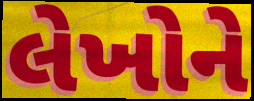
લેખોને